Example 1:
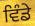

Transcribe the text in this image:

ਵਿੰਡੇ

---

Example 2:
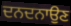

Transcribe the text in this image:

ਦਨਦਨਾਉਣ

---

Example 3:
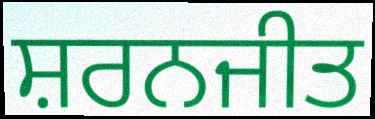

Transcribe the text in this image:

ਸ਼ਰਨਜੀਤ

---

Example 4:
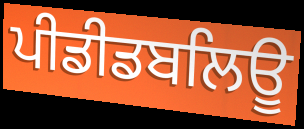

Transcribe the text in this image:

ਪੀਡੀਡਬਲਿਊ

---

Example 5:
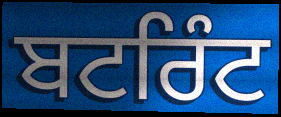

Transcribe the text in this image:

ਬਟਰਿੰਟ